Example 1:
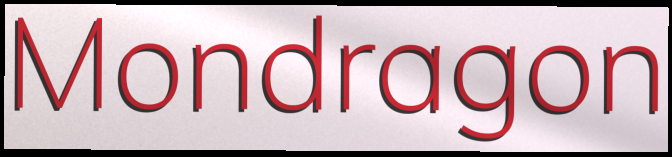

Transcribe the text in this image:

Mondragon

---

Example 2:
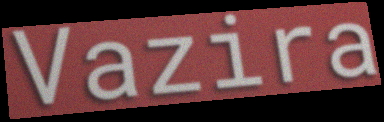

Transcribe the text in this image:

Vazira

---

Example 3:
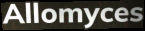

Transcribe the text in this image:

Allomyces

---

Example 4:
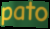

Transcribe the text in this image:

pato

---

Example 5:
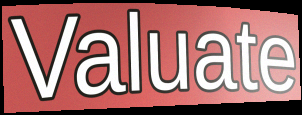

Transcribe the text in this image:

Valuate